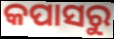
କପାସରୁ